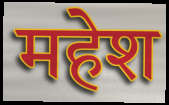
महेश